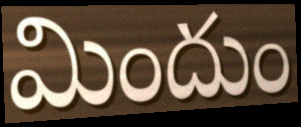
మిందుం